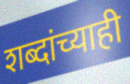
शब्दांच्याही